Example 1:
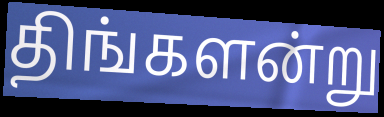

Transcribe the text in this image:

திங்களன்று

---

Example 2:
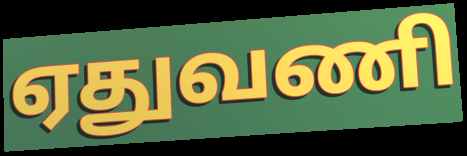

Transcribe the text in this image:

ஏதுவணி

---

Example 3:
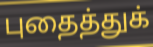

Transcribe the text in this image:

புதைத்துக்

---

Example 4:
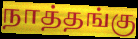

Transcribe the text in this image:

நாத்தங்கு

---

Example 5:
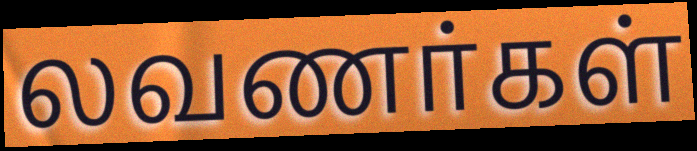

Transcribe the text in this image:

லவணர்கள்